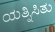
ಯತ್ನಿಸಿತು